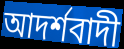
আদর্শবাদী